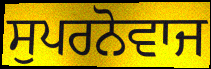
ਸੁਪਰਨੋਵਾਜ